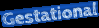
Gestational